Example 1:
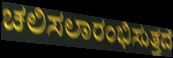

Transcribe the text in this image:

ಚಲಿಸಲಾರಂಭಿಸುತ್ತದೆ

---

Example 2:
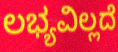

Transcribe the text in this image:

ಲಭ್ಯವಿಲ್ಲದೆ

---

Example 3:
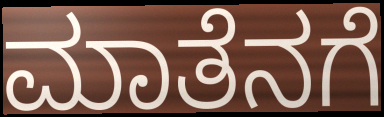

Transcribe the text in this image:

ಮಾತೆನಗೆ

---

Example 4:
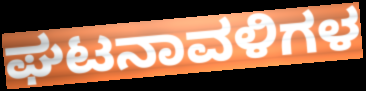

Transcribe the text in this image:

ಘಟನಾವಳಿಗಳ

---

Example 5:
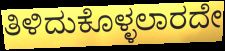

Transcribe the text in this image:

ತಿಳಿದುಕೊಳ್ಳಲಾರದೇ